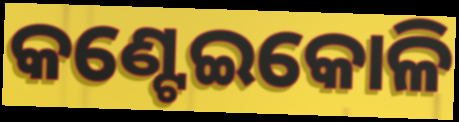
କଣ୍ଟେଇକୋଳି